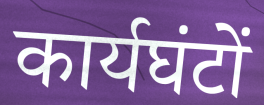
कार्यघंटों